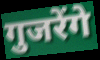
गुजरेंगे